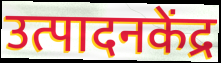
उत्पादनकेंद्र